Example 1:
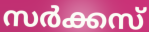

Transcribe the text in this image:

സർക്കസ്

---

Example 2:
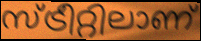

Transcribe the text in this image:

സ്ട്രീറ്റിലാണ്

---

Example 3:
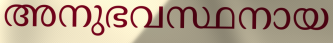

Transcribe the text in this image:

അനുഭവസ്ഥനായ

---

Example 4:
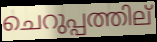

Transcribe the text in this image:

ചെറുപ്പത്തില്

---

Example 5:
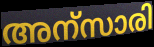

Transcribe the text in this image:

അന്സാരി